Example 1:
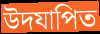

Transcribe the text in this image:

উদযাপিত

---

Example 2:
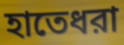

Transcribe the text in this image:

হাতেধরা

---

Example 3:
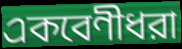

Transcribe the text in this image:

একবেণীধরা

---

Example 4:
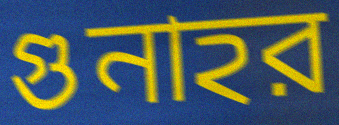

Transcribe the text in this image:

গুনাহর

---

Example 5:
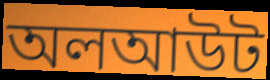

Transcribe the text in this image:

অলআউট